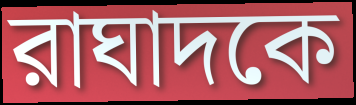
রাঘাদকে